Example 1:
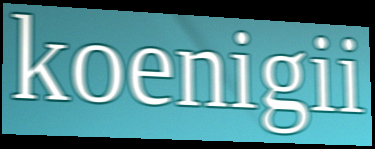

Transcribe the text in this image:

koenigii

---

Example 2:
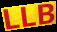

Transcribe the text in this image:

LLB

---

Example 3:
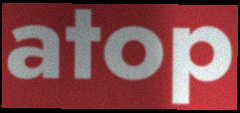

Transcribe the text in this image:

atop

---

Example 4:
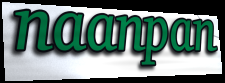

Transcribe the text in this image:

naanpan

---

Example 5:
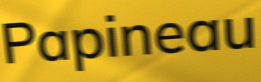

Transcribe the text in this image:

Papineau